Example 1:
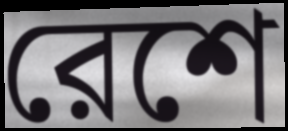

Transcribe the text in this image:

রেশে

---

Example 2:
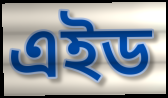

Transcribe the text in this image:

এইড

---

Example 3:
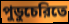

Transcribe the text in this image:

পুডুচেরিতে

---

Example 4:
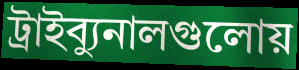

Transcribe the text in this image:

ট্রাইব্যুনালগুলোয়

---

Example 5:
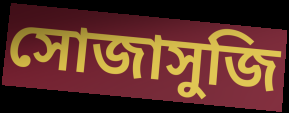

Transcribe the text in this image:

সোজাসুজি